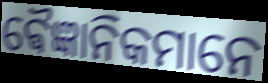
ଵୈଜ୍ଞାନିକମାନେ